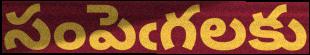
సంపెఁగలకు